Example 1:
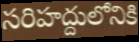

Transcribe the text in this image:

సరిహద్దులోనికి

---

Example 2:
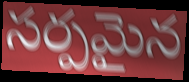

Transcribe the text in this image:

సర్పమైన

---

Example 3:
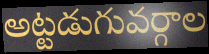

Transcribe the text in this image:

అట్టడుగువర్గాల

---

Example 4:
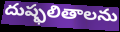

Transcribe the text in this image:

దుష్ఫలితాలను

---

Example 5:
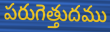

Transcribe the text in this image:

పరుగెత్తుదము